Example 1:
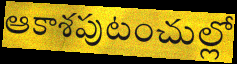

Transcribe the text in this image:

ఆకాశపుటంచుల్లో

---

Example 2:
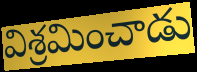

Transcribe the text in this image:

విశ్రమించాడు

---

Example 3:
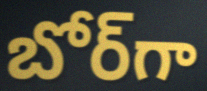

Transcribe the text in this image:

బోర్‌గా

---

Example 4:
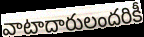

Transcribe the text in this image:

వాటాదారులందరికీ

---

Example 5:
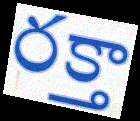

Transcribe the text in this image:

రక్తా